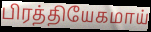
பிரத்தியேகமாய்